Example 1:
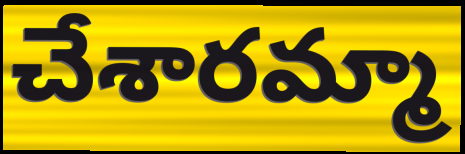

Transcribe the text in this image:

చేశారమ్మా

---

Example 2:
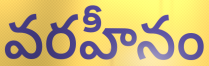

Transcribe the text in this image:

వరహీనం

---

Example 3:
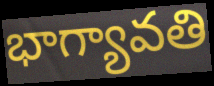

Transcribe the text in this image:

భాగ్యావతి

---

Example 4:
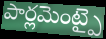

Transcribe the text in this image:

పార్లమెంట్పై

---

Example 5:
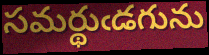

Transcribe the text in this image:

సమర్థుఁడగును